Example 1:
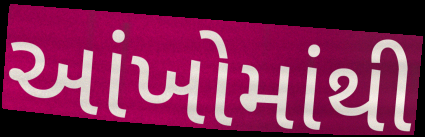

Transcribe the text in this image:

આંખોમાંથી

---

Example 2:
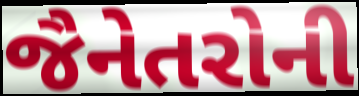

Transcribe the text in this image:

જૈનેતરોની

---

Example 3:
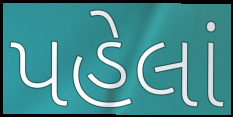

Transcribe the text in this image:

પહેલાં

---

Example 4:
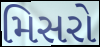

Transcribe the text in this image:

મિસરો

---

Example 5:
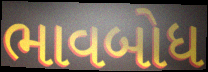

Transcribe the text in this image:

ભાવબોધ